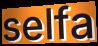
selfa